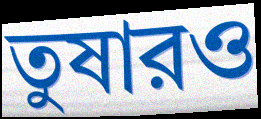
তুষারও